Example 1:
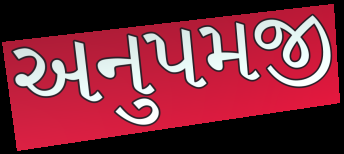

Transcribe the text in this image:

અનુપમજી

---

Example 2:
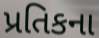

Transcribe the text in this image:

પ્રતિકના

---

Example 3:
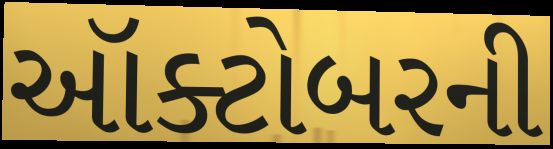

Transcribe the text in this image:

ઑક્ટોબરની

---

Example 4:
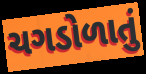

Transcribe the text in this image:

ચગડોળાતું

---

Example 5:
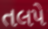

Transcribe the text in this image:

તલપે